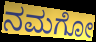
ನಮಗೋ